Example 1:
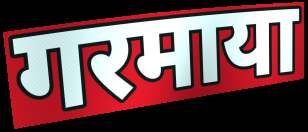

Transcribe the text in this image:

गरमाया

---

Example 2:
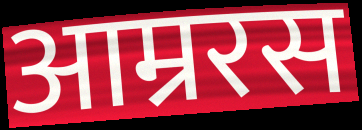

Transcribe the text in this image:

आम्ररस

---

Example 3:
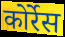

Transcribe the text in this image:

कोर्रेस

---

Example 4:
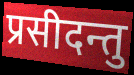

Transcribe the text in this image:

प्रसीदन्तु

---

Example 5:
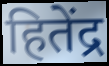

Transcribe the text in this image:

हितेंद्र